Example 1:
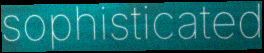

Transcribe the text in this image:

sophisticated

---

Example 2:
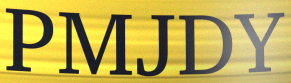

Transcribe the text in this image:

PMJDY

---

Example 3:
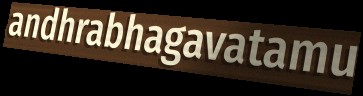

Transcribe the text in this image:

andhrabhagavatamu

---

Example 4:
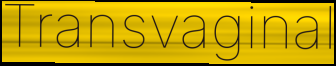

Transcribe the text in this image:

Transvaginal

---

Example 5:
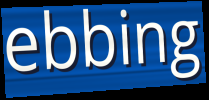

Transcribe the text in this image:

ebbing